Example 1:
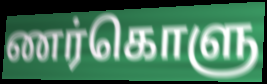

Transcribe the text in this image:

ணர்கொளு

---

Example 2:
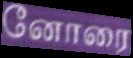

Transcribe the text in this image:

னோரை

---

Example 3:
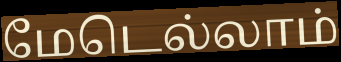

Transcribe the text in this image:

மேடெல்லாம்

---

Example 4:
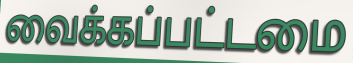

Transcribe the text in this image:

வைக்கப்பட்டமை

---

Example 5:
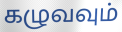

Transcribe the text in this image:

கழுவவும்